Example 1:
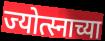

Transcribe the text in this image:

ज्योत्स्नाच्या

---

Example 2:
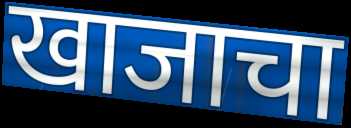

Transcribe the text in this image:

खाजाचा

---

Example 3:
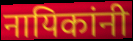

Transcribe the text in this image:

नायिकांनी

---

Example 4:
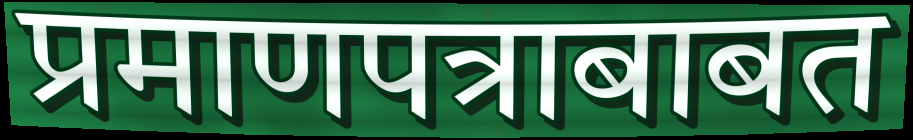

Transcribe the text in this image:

प्रमाणपत्राबाबत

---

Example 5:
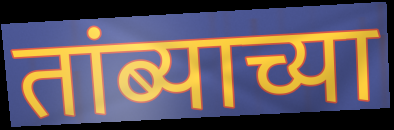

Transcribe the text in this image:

तांब्याच्या